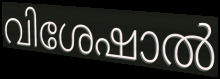
വിശേഷാൽ